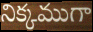
నిక్కముగా